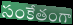
సంకేతంగా